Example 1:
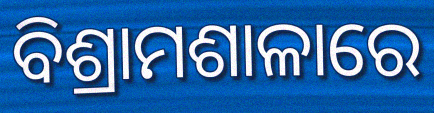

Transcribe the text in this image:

ବିଶ୍ରାମଶାଳାରେ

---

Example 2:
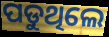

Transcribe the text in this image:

ପଡୁଥିଲେ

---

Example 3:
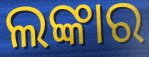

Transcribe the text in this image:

ଲଙ୍କାର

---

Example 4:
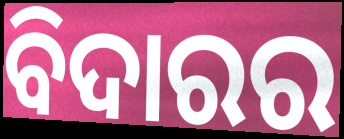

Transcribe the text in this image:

ବିଦାରର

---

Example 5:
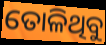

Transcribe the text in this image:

ତୋଳିଥିବୁ